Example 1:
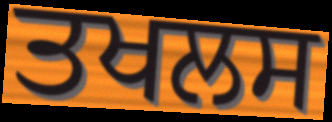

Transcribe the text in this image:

ਤਖਲਸ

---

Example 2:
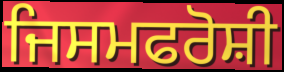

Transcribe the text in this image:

ਜਿਸਮਫਰੋਸ਼ੀ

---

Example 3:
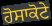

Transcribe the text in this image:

ਹੋਸਾਕੋਟੇ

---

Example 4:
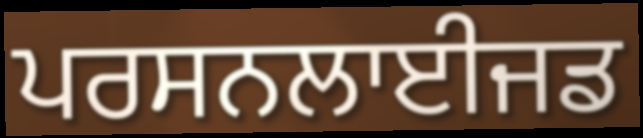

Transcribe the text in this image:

ਪਰਸਨਲਾਈਜਡ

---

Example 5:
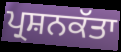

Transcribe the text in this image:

ਪ੍ਰਸ਼ਨਕੱਤਾ